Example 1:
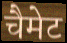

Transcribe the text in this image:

चैमेट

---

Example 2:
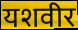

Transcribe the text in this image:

यशवीर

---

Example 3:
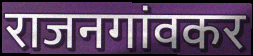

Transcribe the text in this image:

राजनगांवकर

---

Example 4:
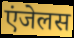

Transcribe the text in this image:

एंजेलस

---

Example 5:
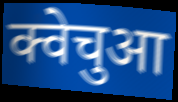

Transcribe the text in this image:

क्वेचुआ